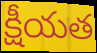
క్షీయత